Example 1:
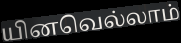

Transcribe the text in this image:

யினவெல்லாம்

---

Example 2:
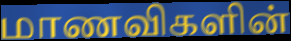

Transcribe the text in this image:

மாணவிகளின்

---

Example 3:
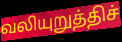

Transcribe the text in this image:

வலியுறுத்திச்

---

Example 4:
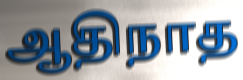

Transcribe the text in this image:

ஆதிநாத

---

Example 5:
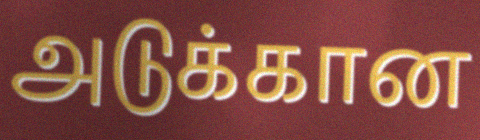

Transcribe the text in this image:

அடுக்கான